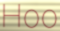
Hoo